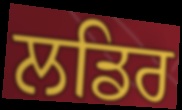
ਲਡਿਰ